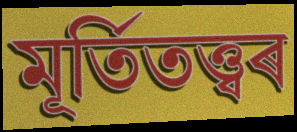
মূৰ্তিতত্ত্বৰ